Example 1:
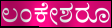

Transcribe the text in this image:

ಲಂಕೇಶರೂ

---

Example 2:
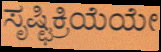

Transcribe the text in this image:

ಸೃಷ್ಟಿಕ್ರಿಯೆಯೇ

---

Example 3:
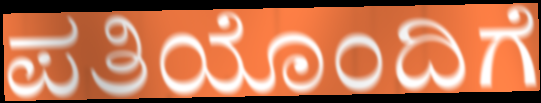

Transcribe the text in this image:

ಪತಿಯೊಂದಿಗೆ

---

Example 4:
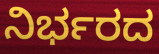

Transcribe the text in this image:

ನಿರ್ಭರದ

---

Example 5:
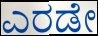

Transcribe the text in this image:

ಎರಡೇ